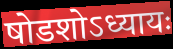
षोडशोऽध्यायः